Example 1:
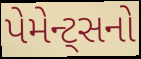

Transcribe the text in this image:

પેમેન્ટ્સનો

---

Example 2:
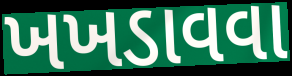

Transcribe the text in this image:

ખખડાવવા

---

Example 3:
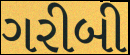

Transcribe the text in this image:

ગરીબી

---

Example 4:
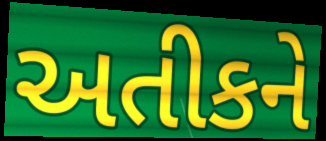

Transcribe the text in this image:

અતીકને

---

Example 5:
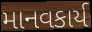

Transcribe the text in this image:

માનવકાર્ય